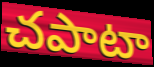
చపాటా